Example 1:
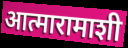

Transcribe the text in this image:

आत्मारामाशी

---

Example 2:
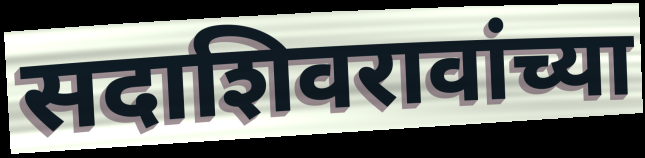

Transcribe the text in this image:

सदाशिवरावांच्या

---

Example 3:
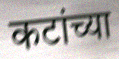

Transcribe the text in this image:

कटांच्या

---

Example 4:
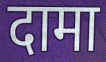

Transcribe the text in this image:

दामा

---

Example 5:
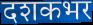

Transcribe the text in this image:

दशकभर